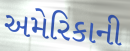
અમેરિકાની